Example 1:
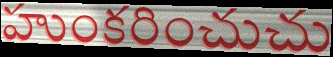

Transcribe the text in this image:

హుంకరించుచు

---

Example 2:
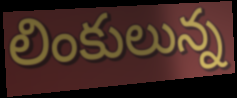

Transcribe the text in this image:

లింకులున్న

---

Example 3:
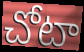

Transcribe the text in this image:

చోటా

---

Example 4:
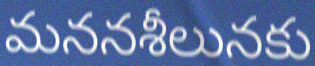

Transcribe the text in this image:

మననశీలునకు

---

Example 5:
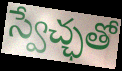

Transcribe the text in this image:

స్వేచ్ఛతో